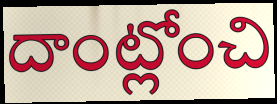
దాంట్లోంచి